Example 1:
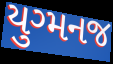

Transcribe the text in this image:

યુગ્મનજ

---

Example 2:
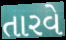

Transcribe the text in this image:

તારવે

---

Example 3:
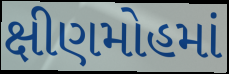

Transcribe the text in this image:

ક્ષીણમોહમાં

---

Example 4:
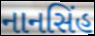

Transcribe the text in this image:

નાનસિંહ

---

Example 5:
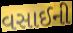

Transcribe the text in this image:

વસાઈની